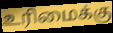
உரிமைக்கு